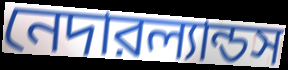
নেদারল্যান্ডস